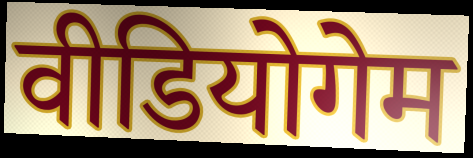
वीडियोगेम